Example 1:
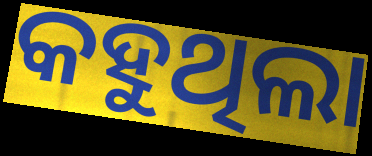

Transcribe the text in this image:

କହୁଥିଲା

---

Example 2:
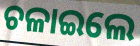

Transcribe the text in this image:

ଚଳାଇଲେ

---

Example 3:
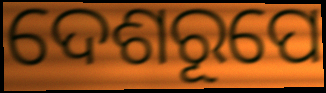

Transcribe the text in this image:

ଦେଶରୂପେ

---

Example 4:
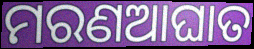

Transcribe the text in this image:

ମରଣଆଘାତ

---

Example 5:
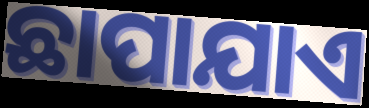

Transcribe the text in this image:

ଛାପାଯାଏ